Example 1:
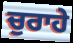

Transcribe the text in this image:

ਚੁਰਾਹੇ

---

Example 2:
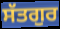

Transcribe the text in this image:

ਸੱਤਗੁਰ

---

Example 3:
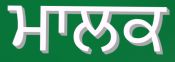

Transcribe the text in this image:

ਮਾਲਕ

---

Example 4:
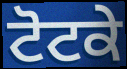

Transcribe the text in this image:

ਟੋਟਕੇ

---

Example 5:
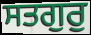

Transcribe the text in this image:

ਸਤਗੁਰੁ